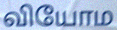
வியோம